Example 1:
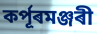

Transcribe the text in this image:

কৰ্পূৰমঞ্জৰী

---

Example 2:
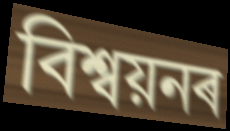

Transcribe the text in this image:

বিশ্বয়নৰ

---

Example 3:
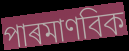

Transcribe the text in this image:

পাৰমাণবিক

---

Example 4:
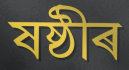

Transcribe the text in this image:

ষষ্ঠীৰ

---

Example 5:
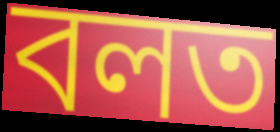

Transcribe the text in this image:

বলত